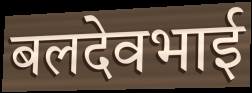
बलदेवभाई